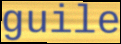
guile